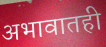
अभावातही